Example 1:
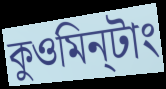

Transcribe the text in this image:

কুওমিন্‌টাং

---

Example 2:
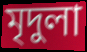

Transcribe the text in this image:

মৃদুলা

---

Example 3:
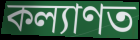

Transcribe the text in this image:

কল্যাণত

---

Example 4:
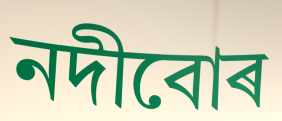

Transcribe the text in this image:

নদীবোৰ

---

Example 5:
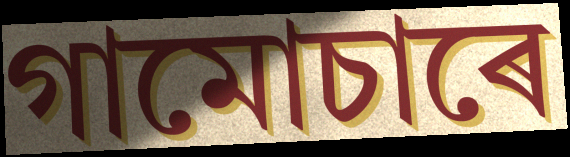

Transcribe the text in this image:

গামোচাৰে